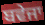
ਬਵੇਜਾ